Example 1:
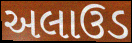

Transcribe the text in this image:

અલાઉડ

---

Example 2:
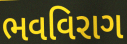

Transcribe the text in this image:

ભવવિરાગ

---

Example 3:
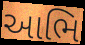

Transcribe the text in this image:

આભિ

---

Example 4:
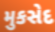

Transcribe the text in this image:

મુકસેદ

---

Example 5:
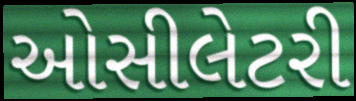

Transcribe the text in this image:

ઓસીલેટરી